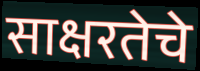
साक्षरतेचे